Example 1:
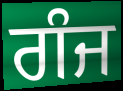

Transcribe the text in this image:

ਗੰਜ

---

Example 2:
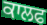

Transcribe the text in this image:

ਕਾਲਫ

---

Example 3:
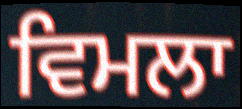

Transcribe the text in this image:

ਵਿਮਲਾ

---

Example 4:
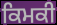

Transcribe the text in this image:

ਕਿਮਕੀ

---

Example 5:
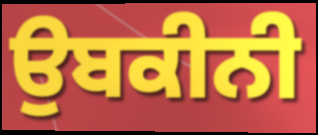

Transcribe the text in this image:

ਉਬਕੀਨੀ